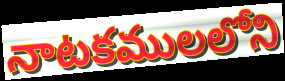
నాటకములలోని